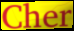
Cher